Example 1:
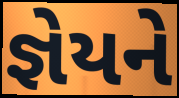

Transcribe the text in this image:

જ્ઞેયને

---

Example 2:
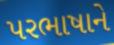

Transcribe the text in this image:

પરભાષાને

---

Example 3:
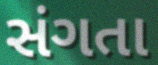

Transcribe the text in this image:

સંગતા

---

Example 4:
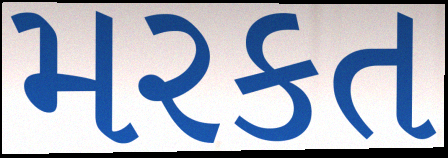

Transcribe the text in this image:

મરકત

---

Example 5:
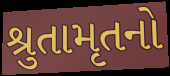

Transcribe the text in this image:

શ્રુતામૃતનો